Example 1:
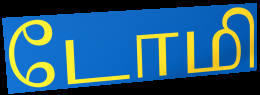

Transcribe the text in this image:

டோமி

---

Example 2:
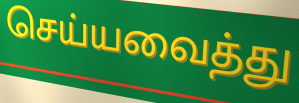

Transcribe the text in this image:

செய்யவைத்து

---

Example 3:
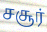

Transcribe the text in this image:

சசூர்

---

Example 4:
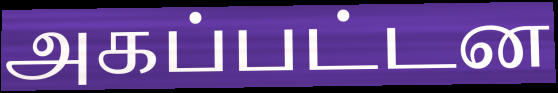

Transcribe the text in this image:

அகப்பட்டன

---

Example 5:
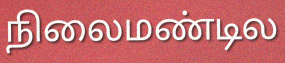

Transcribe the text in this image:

நிலைமண்டில